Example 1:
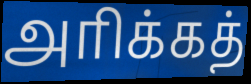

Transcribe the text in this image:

அரிக்கத்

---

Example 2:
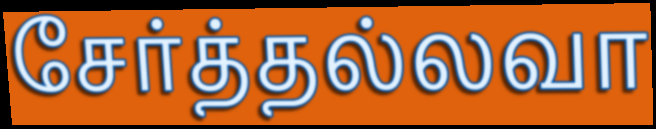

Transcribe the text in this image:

சேர்த்தல்லவா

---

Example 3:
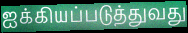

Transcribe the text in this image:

ஐக்கியப்படுத்துவது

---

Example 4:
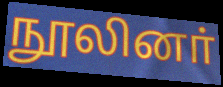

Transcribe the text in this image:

நூலினர்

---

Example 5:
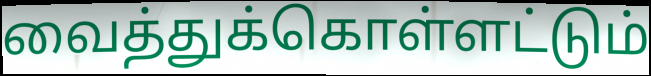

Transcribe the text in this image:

வைத்துக்கொள்ளட்டும்